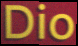
Dio